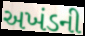
અખંડની